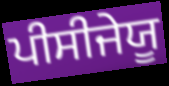
ਪੀਸੀਜੇਯੂ